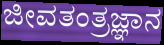
ಜೀವತಂತ್ರಜ್ಞಾನ